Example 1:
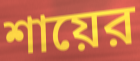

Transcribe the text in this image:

শায়ের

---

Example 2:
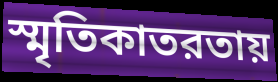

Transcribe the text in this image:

স্মৃতিকাতরতায়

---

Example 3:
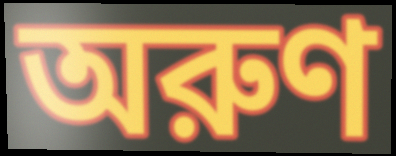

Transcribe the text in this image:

অরুণ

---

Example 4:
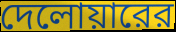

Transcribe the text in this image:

দেলোয়ারের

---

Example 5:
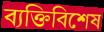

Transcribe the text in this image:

ব্যক্তিবিশেষ